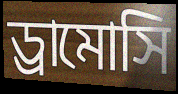
ড্রামোসি